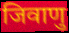
जिवाणु